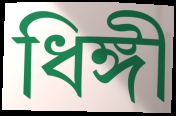
ধিঙ্গী